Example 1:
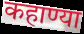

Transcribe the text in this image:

कहाण्या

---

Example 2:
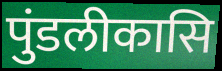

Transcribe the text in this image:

पुंडलीकासि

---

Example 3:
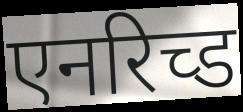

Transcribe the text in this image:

एनरिच्ड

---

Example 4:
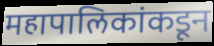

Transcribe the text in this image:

महापालिकांकडून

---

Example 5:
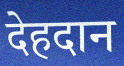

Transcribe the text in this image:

देहदान